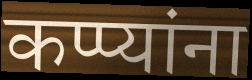
कप्प्यांना